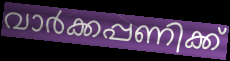
വാർക്കപ്പണിക്ക്